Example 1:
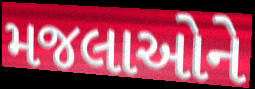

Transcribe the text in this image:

મજલાઓને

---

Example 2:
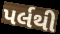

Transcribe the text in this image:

પર્લથી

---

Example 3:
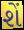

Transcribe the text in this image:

શેં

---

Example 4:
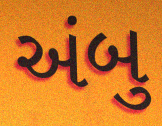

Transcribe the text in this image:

અંબુ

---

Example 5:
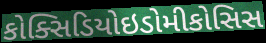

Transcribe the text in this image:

કોક્સિડિયોઇડોમીકોસિસ